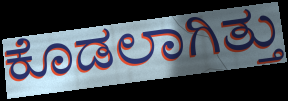
ಕೊಡಲಾಗಿತ್ತು